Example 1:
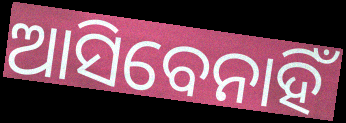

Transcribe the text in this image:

ଆସିବେନାହିଁ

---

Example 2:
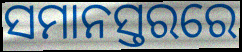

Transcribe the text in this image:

ସମାନସ୍ତରରେ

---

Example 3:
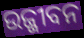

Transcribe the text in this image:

ଉଜ୍ଜୀବନ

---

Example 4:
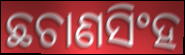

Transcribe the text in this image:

ଛଚାଣସିଂହ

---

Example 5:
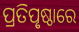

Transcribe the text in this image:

ପ୍ରତିପୃଷ୍ଠାରେ